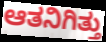
ಆತನಿಗಿತ್ತು